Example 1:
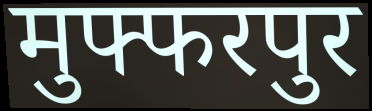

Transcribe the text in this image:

मुफ्फरपुर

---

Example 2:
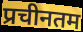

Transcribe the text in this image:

प्रचीनतम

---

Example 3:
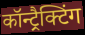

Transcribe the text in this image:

कॉन्ट्रैक्टिंग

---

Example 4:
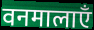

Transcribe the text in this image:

वनमालाएँ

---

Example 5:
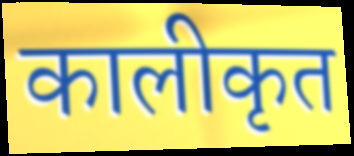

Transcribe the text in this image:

कालीकृत